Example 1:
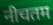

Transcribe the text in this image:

नीचतम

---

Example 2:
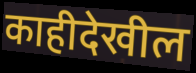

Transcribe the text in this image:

काहीदेखील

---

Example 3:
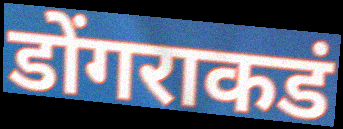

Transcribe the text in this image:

डोंगराकडं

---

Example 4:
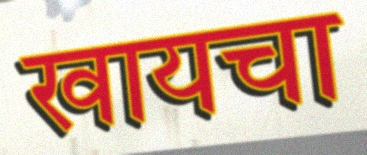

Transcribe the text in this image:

खायचा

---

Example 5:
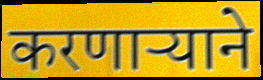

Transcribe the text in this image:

करणाऱ्याने